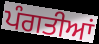
ਪੰਗਤੀਆਂ